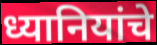
ध्यानियांचे